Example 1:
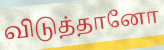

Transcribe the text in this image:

விடுத்தானோ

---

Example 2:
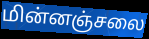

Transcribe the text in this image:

மின்னஞ்சலை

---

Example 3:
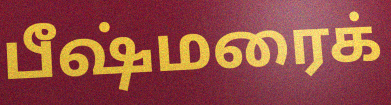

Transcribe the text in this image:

பீஷ்மரைக்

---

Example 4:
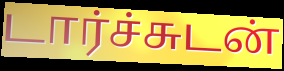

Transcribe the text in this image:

டார்ச்சுடன்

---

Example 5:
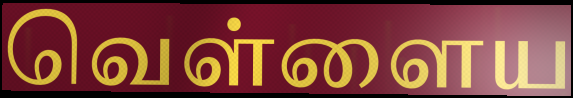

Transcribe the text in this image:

வெள்ளைய